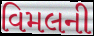
વિમલની